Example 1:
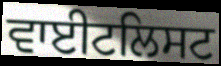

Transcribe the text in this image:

ਵਾਈਟਲਿਸਟ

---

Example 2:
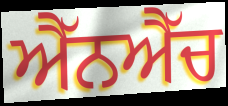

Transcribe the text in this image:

ਐੱਨਐੱਚ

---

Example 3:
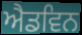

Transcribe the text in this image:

ਐਡਵਿਨ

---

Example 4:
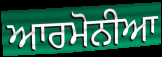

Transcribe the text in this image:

ਆਰਮੋਨੀਆ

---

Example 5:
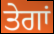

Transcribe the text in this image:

ਤੇਗਾਂ